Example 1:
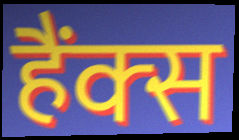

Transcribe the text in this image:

हैंक्‍स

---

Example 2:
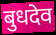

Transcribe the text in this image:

बुधदेव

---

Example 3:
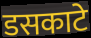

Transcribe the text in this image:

डसकाटे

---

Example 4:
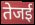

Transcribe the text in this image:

तेजई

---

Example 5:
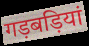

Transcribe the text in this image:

गड़बड़ियां